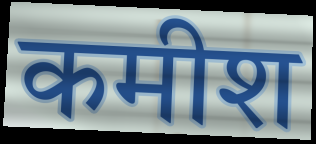
कमीश